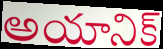
అయానిక్